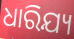
ଧାରିଯ୍ୟ